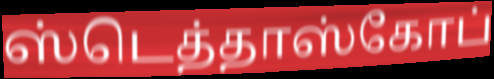
ஸ்டெத்தாஸ்கோப்